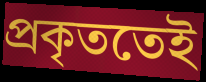
প্ৰকৃততেই